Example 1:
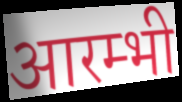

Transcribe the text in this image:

आरम्भी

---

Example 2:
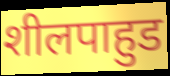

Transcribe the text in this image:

शीलपाहुड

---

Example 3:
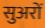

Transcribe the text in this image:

सुअरों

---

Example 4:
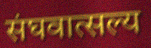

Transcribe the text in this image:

संघवात्सल्य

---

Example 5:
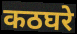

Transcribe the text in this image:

कठघरे